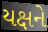
યક્ષને